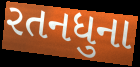
રતનધુના